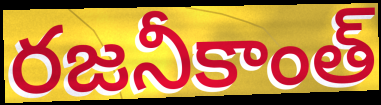
రజనీకాంత్